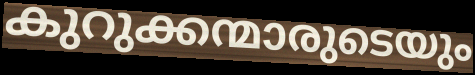
കുറുക്കന്മാരുടെയും